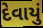
દેવાયું